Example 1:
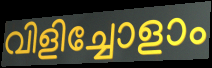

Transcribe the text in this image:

വിളിച്ചോളാം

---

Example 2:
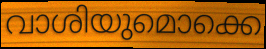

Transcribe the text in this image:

വാശിയുമൊക്കെ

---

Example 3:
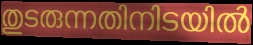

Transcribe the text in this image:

തുടരുന്നതിനിടയിൽ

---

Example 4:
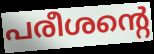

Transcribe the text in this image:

പരീശന്റെ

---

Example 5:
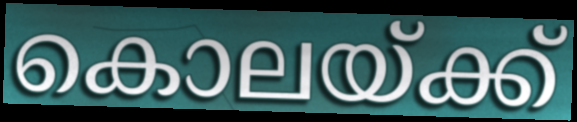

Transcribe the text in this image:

കൊലയ്ക്ക്